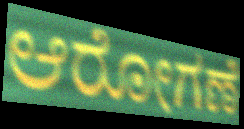
ಆರೋಗಣೆ